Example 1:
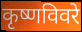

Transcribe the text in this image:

कृष्णविवरे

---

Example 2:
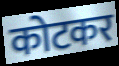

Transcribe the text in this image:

कोटकर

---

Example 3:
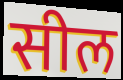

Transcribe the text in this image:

सील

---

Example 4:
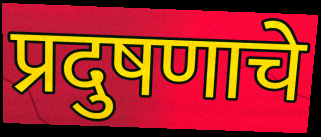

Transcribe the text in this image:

प्रदुषणाचे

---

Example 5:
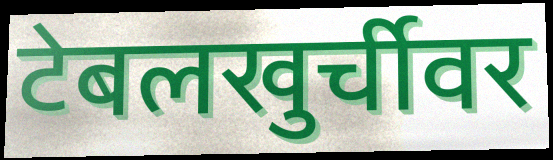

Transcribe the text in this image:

टेबलखुर्चीवर